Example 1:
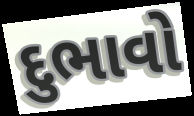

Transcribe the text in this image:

દુભાવો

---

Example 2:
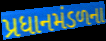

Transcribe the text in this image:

પ્રધાનમંડળના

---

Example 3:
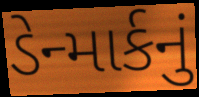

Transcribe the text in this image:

ડેન્માર્કનું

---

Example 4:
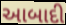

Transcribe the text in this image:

આબાદી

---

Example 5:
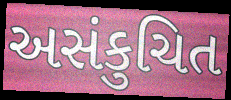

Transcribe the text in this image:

અસંકુચિત